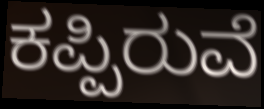
ಕಪ್ಪಿರುವೆ